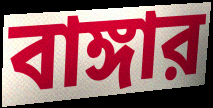
বাঙ্গার